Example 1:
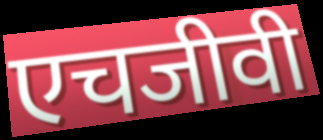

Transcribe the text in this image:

एचजीवी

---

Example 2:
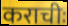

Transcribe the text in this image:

कराचीः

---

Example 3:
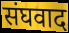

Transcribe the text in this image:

संघवाद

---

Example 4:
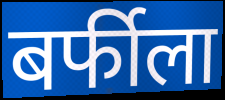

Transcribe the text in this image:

बर्फीला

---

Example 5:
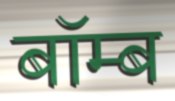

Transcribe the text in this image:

बॉम्ब